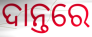
ଦାନ୍ତରେ